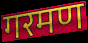
गरमण